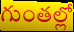
గుంతల్లో